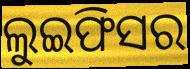
ଲୁଇଫିସର